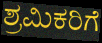
ಶ್ರಮಿಕರಿಗೆ